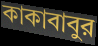
কাকাবাবুর